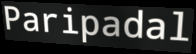
Paripadal